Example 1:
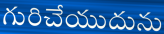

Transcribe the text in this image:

గురిచేయుదును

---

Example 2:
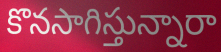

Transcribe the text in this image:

కొనసాగిస్తున్నారా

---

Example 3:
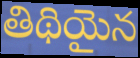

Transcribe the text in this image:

తిథియైన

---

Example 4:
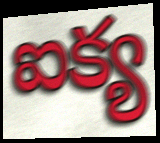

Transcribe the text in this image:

ఐక్య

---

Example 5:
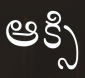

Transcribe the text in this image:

ఆక్సి